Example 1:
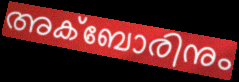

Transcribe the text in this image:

അക്ബോരിനും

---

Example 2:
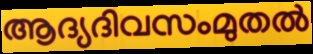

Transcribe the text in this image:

ആദ്യദിവസംമുതൽ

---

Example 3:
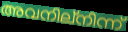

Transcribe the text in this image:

അവനില്നിന്ന്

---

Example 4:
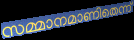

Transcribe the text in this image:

സമ്മാനമാണിതെന്ന്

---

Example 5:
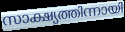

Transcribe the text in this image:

സാക്ഷ്യത്തിന്നായി